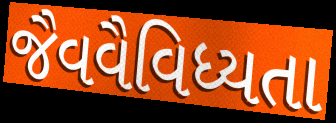
જૈવવૈવિધ્યતા